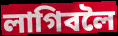
লাগিবলৈ